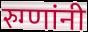
रुग्णांनी